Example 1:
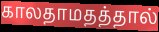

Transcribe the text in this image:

காலதாமதத்தால்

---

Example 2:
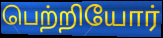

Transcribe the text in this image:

பெற்றியோர்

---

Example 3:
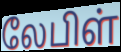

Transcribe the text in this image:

லேபிள்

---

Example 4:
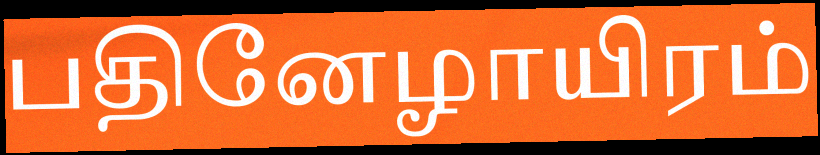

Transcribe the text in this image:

பதினேழாயிரம்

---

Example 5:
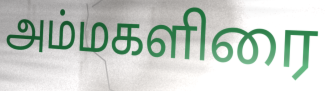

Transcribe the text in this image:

அம்மகளிரை